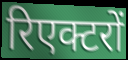
रिएक्टरों